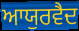
ਆਯੁਰਵੈਦ